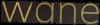
wane